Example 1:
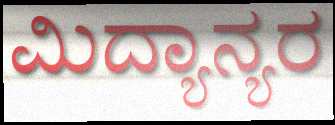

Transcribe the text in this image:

ಮಿದ್ಯಾನ್ಯರ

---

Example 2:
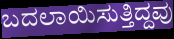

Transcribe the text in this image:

ಬದಲಾಯಿಸುತ್ತಿದ್ದವು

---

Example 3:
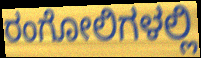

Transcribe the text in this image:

ರಂಗೋಲಿಗಳಲ್ಲಿ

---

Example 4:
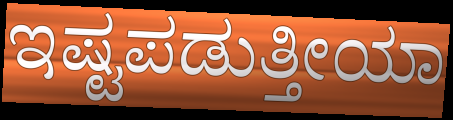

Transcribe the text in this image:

ಇಷ್ಟಪಡುತ್ತೀಯಾ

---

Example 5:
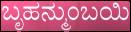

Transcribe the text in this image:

ಬೃಹನ್ಮುಂಬಯಿ